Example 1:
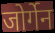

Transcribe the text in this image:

जोर्गेन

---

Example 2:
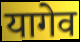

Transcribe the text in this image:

यागेव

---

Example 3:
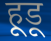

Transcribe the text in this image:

हूडू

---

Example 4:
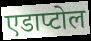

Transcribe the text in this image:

एडाप्टोल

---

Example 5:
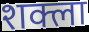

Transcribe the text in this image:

शक्ला